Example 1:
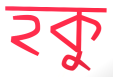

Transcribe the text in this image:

হকু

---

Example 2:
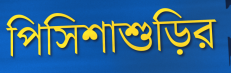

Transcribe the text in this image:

পিসিশাশুড়ির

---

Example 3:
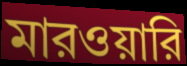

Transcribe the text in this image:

মারওয়ারি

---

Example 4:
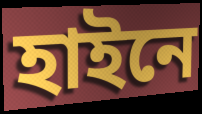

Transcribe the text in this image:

হাইনে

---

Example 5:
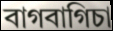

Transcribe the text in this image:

বাগবাগিচা